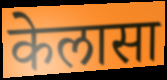
केलासा